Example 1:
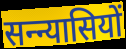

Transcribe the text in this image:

सन्न्यासियों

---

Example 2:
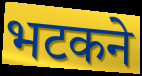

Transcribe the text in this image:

भटकने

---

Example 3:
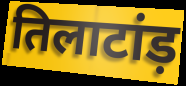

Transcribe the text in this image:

तिलाटांड़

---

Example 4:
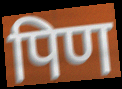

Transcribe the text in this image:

पिण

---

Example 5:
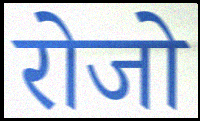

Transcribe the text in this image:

रोजो